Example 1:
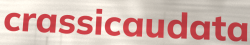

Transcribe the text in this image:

crassicaudata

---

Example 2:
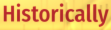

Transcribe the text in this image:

Historically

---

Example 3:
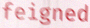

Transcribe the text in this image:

feigned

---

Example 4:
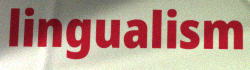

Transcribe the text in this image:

lingualism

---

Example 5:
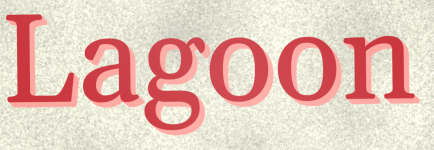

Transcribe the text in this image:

Lagoon